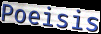
Poeisis